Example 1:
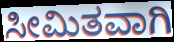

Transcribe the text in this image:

ಸೀಮಿತವಾಗಿ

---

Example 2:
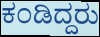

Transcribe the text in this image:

ಕಂಡಿದ್ದರು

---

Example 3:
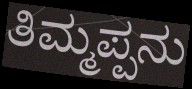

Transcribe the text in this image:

ತಿಮ್ಮಪ್ಪನು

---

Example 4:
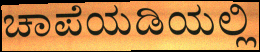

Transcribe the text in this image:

ಚಾಪೆಯಡಿಯಲ್ಲಿ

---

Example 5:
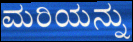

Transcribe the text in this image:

ಮರಿಯನ್ನು